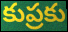
కుప్రకు